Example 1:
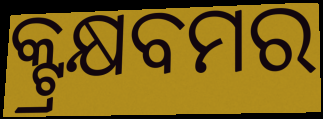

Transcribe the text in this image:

କ୍ଟ୍ରକ୍ଷବମର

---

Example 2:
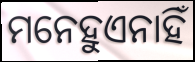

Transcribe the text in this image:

ମନେହୁଏନାହିଁ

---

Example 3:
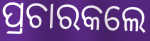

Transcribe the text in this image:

ପ୍ରଚାରକଲେ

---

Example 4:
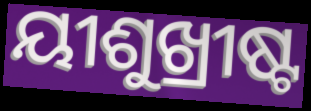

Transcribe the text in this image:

ୟୀଶୁଖ୍ରୀଷ୍ଟ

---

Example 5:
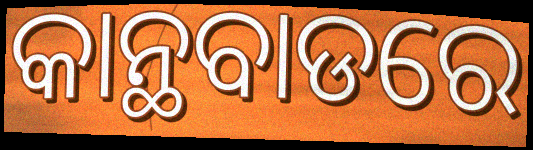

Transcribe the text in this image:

କାନ୍ଥବାଡରେ